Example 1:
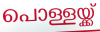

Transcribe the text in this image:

പൊള്ളയ്ക്ക്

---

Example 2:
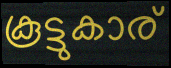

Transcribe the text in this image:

കൂട്ടുകാര്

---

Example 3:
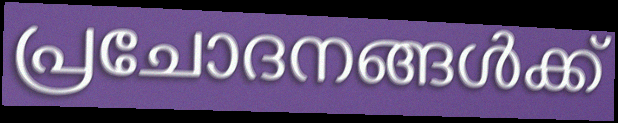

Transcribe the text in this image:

പ്രചോദനങ്ങൾക്ക്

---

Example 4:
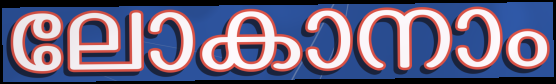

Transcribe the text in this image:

ലോകാനാം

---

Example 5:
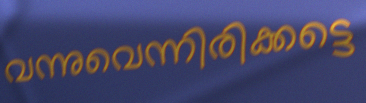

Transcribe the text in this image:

വന്നുവെന്നിരിക്കട്ടെ